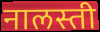
नालस्ती